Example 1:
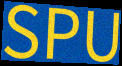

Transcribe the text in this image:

SPU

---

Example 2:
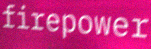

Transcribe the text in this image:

firepower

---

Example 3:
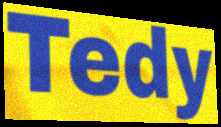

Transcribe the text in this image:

Tedy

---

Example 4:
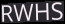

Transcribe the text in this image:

RWHS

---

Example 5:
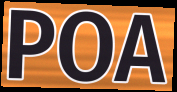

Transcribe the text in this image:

POA